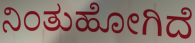
ನಿಂತುಹೋಗಿದೆ